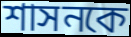
শাসনকে